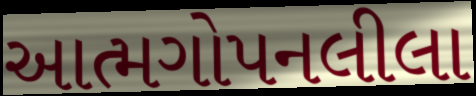
આત્મગોપનલીલા